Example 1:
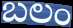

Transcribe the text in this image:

బలం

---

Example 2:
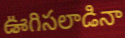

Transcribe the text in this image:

ఊగిసలాడినా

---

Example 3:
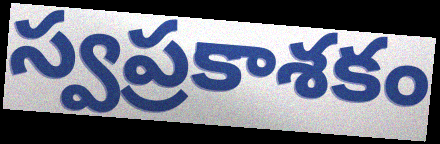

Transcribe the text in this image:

స్వప్రకాశకం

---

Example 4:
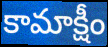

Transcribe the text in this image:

కామాక్షీం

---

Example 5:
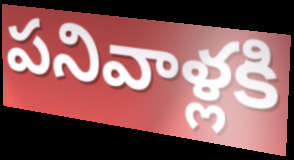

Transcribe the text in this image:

పనివాళ్లకి